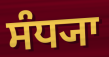
ਸੰਧ੍ਯਾ